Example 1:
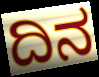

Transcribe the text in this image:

ದಿನ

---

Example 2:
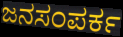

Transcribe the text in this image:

ಜನಸಂಪರ್ಕ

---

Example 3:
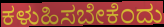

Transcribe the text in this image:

ಕಳುಹಿಸಬೇಕೆಂದು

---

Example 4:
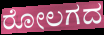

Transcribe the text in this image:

ರೋಲಗದ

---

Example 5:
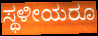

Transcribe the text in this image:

ಸ್ಥಳೀಯರೂ